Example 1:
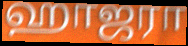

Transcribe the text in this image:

ஹாஜரா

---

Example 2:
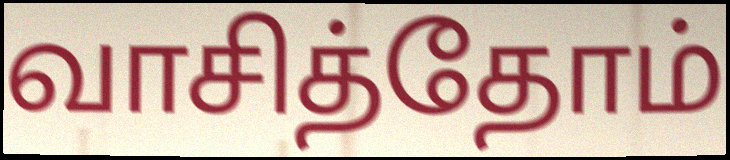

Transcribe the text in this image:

வாசித்தோம்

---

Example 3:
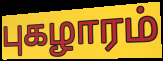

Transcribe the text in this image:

புகழாரம்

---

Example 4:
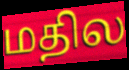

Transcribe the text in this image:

மதில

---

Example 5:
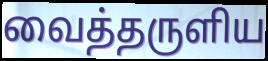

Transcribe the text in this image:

வைத்தருளிய